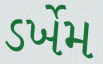
ડર્ખેમ